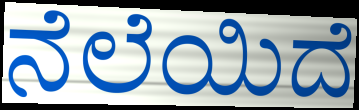
ನೆಲೆಯಿದೆ